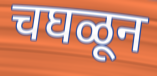
चघळून